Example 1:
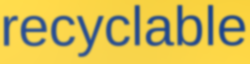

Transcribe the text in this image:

recyclable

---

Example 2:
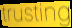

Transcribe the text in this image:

trusting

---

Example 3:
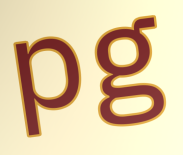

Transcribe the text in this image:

pg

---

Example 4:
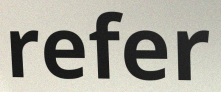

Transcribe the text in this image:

refer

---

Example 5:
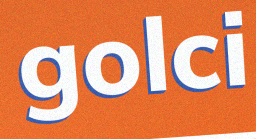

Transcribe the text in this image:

golci